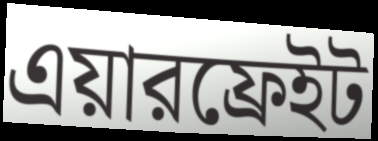
এয়ারফ্রেইট